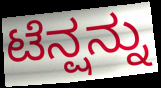
ಟೆನ್ಷನ್ನು